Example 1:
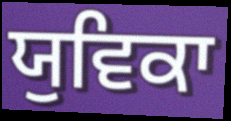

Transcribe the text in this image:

ਯੁਵਿਕਾ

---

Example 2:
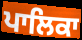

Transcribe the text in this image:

ਪਾਲਿਕਾ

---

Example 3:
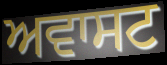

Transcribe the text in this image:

ਅਵਾਸਟ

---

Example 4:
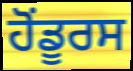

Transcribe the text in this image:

ਹੋਂਡੂਰਸ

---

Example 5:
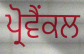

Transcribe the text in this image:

ਪ੍ਰੋਵੈਂਕਲ